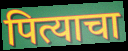
पित्याचा